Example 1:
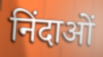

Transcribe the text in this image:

निंदाओं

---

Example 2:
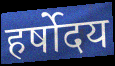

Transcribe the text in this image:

हर्षोदय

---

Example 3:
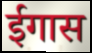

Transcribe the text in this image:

ईगास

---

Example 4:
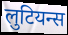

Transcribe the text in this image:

लुटियन्स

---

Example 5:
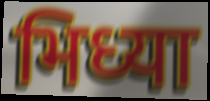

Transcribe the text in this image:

भिध्या